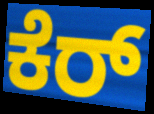
ಕೆರ್